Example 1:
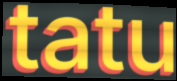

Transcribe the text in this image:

tatu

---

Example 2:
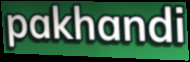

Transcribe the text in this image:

pakhandi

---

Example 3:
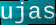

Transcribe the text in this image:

ujas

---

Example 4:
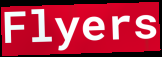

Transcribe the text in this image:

Flyers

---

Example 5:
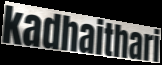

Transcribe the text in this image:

kadhaithari